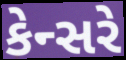
કેન્સરે